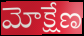
మోక్షేణ